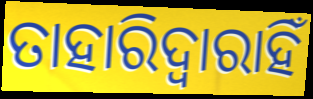
ତାହାରିଦ୍ୱାରାହିଁ